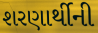
શરણાર્થીની